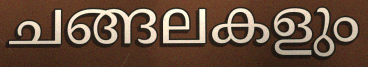
ചങ്ങലകളും